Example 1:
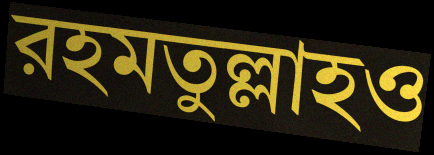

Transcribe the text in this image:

রহমতুল্লাহও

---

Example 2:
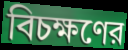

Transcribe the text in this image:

বিচক্ষণের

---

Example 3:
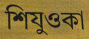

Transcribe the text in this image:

শিযুওকা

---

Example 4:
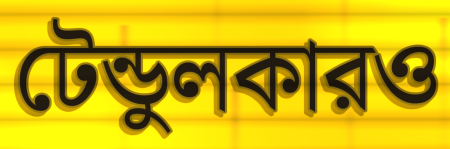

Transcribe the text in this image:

টেন্ডুলকারও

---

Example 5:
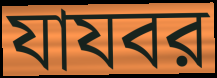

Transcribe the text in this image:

যাযবর